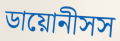
ডায়োনীসস